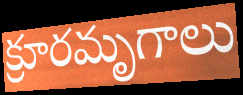
క్రూరమృగాలు